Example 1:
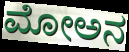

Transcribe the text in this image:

ಮೋಅನ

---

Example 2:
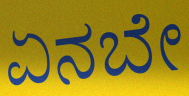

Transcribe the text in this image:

ಏನಬೇ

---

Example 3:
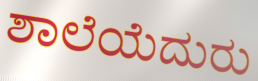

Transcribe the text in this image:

ಶಾಲೆಯೆದುರು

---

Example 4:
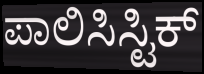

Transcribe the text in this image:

ಪಾಲಿಸಿಸ್ಟಿಕ್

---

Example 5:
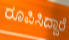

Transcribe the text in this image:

ರೂಪಿಸಿದ್ದಾರೆ